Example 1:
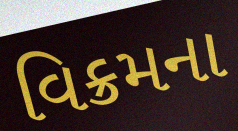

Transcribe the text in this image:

વિક્રમના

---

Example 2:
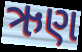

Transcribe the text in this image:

ઋણ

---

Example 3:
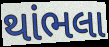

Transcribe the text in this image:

થાંભલા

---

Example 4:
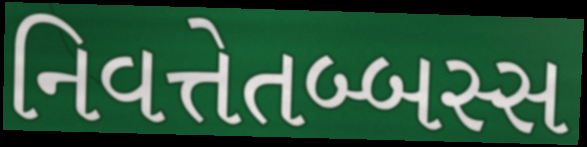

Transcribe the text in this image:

નિવત્તેતબ્બસ્સ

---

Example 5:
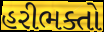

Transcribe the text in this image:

હરીભક્તો